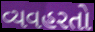
વ્યવહરતો